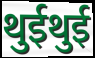
थुईथुई